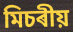
মিচৰীয়